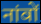
नांवों